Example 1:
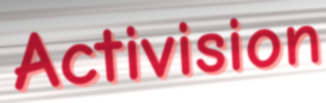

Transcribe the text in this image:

Activision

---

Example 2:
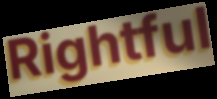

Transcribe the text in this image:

Rightful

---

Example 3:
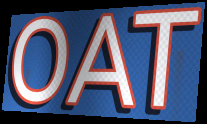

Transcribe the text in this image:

OAT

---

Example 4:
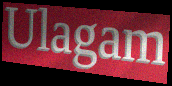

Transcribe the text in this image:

Ulagam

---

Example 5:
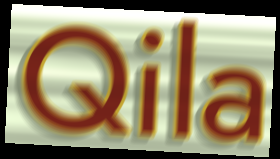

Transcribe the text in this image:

Qila